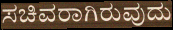
ಸಚಿವರಾಗಿರುವುದು